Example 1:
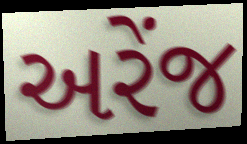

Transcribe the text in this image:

અરેંજ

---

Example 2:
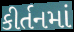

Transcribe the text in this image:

કીર્તનમાં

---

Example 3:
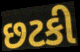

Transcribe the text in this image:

છટકી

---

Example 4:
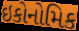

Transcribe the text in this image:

ઇકોનોમિક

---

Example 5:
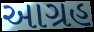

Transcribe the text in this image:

આગ્રહ